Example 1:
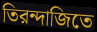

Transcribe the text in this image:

তিরন্দাজিতে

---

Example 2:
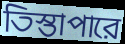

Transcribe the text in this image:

তিস্তাপারে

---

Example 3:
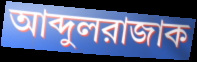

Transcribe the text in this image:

আব্দুলরাজাক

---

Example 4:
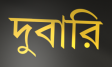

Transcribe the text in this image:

দুবারি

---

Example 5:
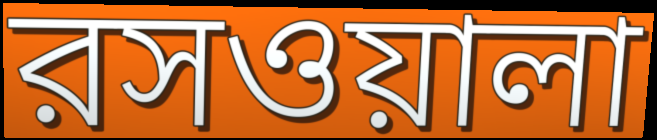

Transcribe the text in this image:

রসওয়ালা